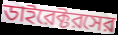
ডাইরেক্টরসের